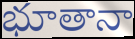
భూతానా